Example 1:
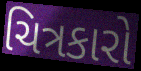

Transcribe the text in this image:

ચિત્રકારો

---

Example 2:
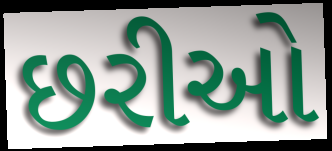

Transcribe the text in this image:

છરીઓ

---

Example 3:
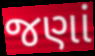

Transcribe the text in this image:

જણાં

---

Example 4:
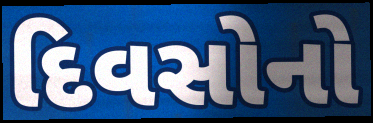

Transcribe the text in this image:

દિવસોનો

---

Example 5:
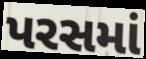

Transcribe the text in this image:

પરસમાં